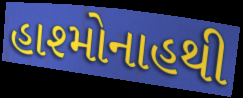
હાશ્મોનાહથી